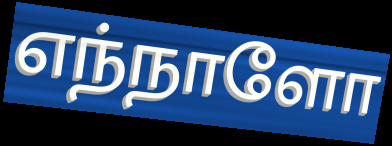
எந்நாளோ